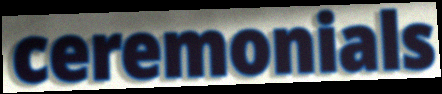
ceremonials